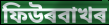
ফিউৰবাখৰ